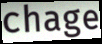
chage